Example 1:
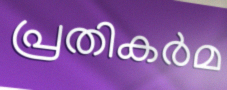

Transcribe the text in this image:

പ്രതികർമ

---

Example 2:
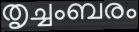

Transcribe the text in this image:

തൃച്ചംബരം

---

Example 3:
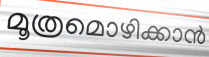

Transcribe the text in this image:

മൂത്രമൊഴിക്കാൻ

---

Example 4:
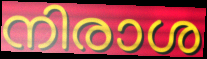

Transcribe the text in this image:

നിരാശ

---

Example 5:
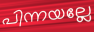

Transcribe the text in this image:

പിന്നയല്ലേ